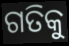
ଗତିକୁ